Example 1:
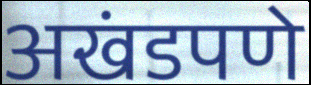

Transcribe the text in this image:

अखंडपणे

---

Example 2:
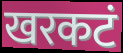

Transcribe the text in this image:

खरकटं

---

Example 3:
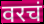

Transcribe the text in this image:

वरचं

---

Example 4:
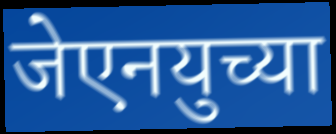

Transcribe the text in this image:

जेएनयुच्या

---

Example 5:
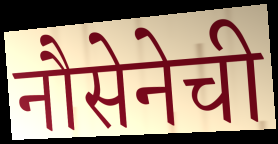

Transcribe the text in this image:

नौसेनेची